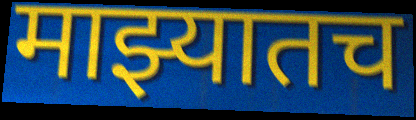
माझ्यातच